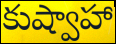
కుష్వాహా